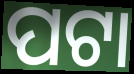
ପଟା